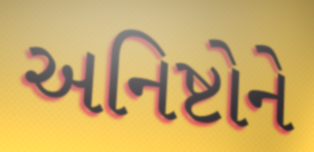
અનિષ્ટોને